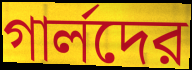
গার্লদের